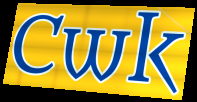
Cwk